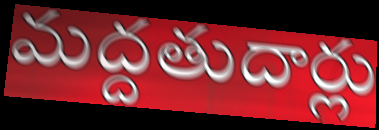
మద్దతుదార్లు